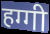
हग्गी